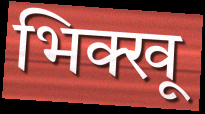
भिक्खू